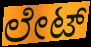
ಲೇಟ್